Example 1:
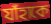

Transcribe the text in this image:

যাঁহাকে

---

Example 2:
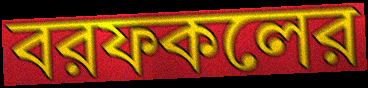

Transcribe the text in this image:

বরফকলের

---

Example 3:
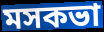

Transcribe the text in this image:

মসকভা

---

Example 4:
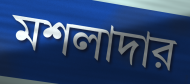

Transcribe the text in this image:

মশলাদার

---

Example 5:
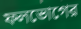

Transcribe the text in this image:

ফলভোগের